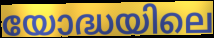
യോദ്ധയിലെ